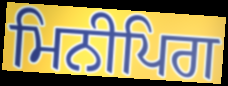
ਮਿਨੀਪਿਗ